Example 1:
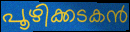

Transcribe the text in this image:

പൂഴിക്കടകൻ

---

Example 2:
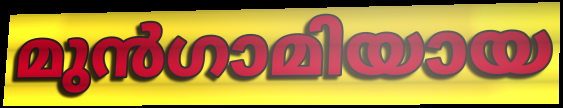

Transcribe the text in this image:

മുൻഗാമിയായ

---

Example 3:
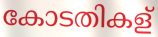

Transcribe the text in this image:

കോടതികള്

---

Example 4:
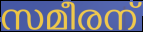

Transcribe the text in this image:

സമീരന്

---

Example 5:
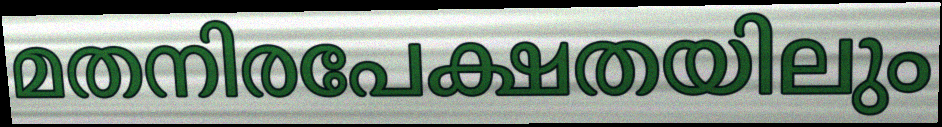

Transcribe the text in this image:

മതനിരപേക്ഷതയിലും